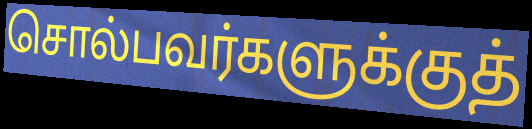
சொல்பவர்களுக்குத்